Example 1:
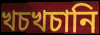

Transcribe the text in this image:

খচখচানি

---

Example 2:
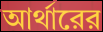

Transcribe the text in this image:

আর্থারের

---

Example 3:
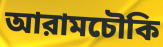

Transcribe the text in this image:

আরামচৌকি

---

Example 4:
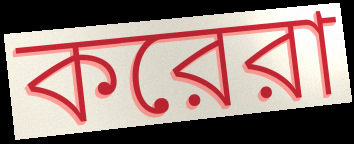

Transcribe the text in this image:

করেরা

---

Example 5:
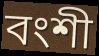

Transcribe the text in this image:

বংশী